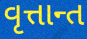
વૃત્તાન્ત